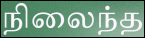
நிலைந்த